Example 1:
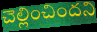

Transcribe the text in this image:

చెల్లించిందని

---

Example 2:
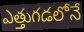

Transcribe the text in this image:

ఎత్తుగడలోనే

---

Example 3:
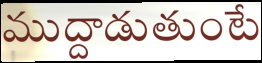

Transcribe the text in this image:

ముద్దాడుతుంటే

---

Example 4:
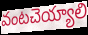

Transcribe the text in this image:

వంటచెయ్యాలి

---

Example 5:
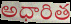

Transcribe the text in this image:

అధారిత